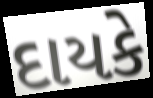
દાયકે